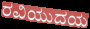
ರವಿಯುದಯ